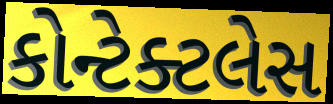
કોન્ટેક્ટલેસ